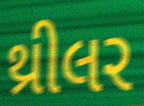
થ્રીલર